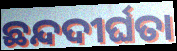
ଛନ୍ଦଦୀର୍ଘତା